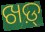
ଖଡ଼୍